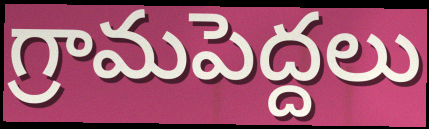
గ్రామపెద్దలు